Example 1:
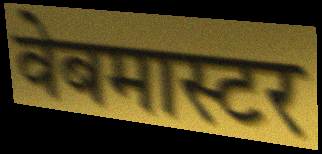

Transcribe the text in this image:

वेबमास्टर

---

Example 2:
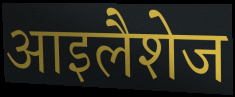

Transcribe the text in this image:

आइलैशेज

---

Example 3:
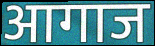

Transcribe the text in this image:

आगाज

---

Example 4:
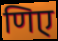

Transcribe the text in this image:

णिए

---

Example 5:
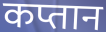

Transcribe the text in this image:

कप्तान